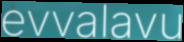
evvalavu